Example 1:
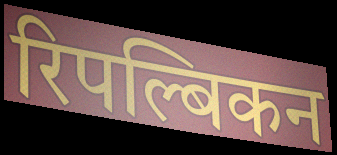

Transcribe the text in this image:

रिपल्बिकन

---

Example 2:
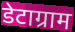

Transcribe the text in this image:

डेटाग्राम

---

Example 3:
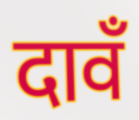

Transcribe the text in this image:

दावँ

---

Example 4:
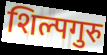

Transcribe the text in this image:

शिल्पगुरु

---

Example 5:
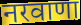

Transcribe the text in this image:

नरवाणा